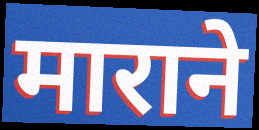
माराने